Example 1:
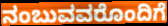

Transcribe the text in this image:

ನಂಬುವವರೊಂದಿಗೆ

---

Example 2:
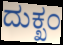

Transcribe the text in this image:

ದುಕ್ಖಂ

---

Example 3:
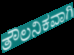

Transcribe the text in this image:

ತೌಲನಿಕವಾಗಿ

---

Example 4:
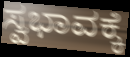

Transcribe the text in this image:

ಸ್ವಭಾವಕ್ಕೆ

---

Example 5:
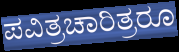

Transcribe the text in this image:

ಪವಿತ್ರಚಾರಿತ್ರರೂ